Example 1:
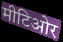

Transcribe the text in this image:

मीटिओर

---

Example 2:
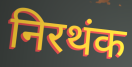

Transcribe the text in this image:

निरथंक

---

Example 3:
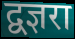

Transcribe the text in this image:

द्वज्ञरा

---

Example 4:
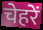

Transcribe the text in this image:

चेहरें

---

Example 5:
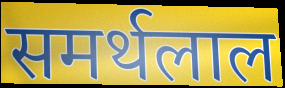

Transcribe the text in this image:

समर्थलाल